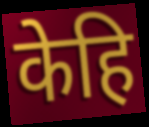
केहि